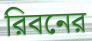
রিবনের